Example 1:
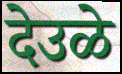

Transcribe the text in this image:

देउळे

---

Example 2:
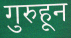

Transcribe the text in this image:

गुरुहून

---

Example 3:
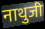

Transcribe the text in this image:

नाथुजी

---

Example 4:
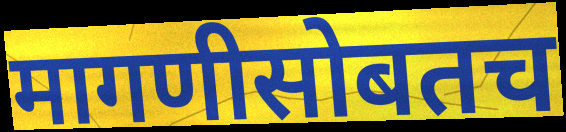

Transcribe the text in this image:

मागणीसोबतच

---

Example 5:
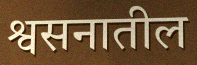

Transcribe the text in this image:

श्वसनातील